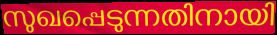
സുഖപ്പെടുന്നതിനായി